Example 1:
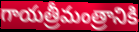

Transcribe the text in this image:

గాయత్రీమంత్రానికి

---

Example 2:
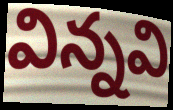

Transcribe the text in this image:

విన్నవి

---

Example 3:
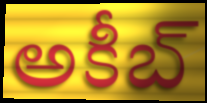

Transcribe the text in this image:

అకీబ్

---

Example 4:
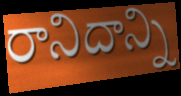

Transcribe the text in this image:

రానిదాన్ని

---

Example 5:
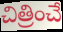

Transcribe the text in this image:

చిత్రించే